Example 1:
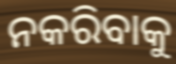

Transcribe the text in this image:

ନକରିବାକୁ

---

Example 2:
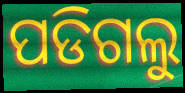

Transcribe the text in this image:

ପଡିଗଲୁ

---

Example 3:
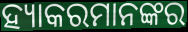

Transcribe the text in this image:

ହ୍ୟାକରମାନଙ୍କର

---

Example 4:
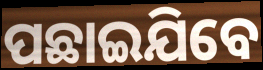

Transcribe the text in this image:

ପଛାଇଯିବେ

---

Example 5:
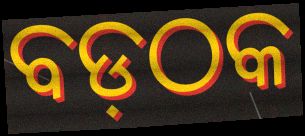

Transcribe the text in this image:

ବଡ଼ଠକ